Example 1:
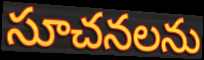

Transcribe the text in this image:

సూచనలను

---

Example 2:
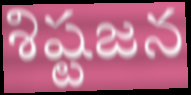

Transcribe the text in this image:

శిష్టజన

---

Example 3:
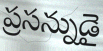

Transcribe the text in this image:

ప్రసన్నుడై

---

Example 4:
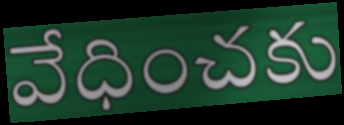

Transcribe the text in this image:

వేధించకు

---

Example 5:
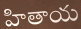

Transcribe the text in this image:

హితాయ